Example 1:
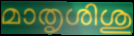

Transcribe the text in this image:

മാതൃശിശു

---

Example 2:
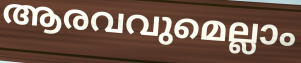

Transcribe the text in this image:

ആരവവുമെല്ലാം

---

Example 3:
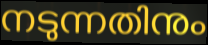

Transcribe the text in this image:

നടുന്നതിനും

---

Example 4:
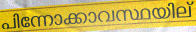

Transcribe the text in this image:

പിന്നോക്കാവസ്ഥയില്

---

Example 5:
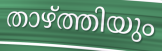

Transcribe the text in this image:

താഴ്ത്തിയും